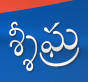
శ్శీఘ్ర